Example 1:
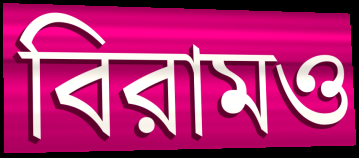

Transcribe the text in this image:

বিরামও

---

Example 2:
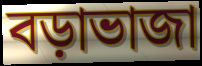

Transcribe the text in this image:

বড়াভাজা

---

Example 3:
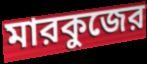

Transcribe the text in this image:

মারকুজের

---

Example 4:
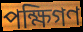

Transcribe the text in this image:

পক্ষিগণ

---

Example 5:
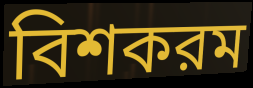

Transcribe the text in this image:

বিশকরম